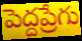
పెద్దప్రేగు